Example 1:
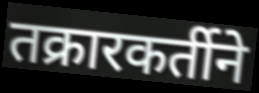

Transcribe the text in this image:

तक्रारकर्तीने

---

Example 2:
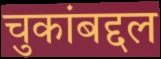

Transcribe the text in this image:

चुकांबद्दल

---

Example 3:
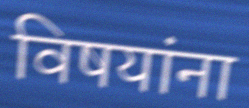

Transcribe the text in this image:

विषयांना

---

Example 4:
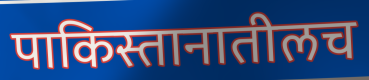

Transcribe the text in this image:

पाकिस्तानातीलच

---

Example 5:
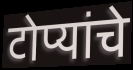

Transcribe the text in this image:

टोप्यांचे